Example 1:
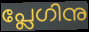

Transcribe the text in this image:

പ്ലേഗിനു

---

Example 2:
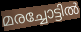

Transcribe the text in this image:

മരച്ചോട്ടിൽ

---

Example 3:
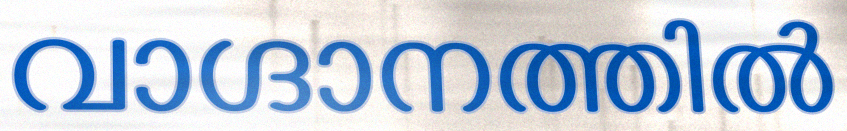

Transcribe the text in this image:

വാഗ്ദാനത്തിൽ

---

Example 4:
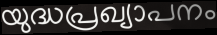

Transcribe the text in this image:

യുദ്ധപ്രഖ്യാപനം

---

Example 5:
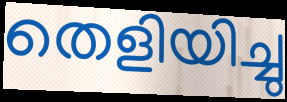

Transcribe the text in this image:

തെളിയിച്ചു